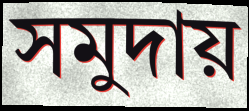
সমুদায়